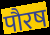
पौरष